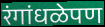
रंगांधळेपण